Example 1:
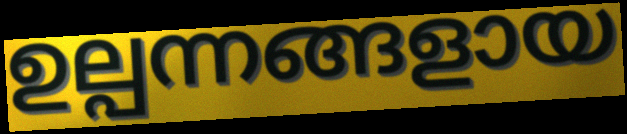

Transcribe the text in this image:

ഉല്പന്നങ്ങളായ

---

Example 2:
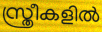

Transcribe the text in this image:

സ്ത്രീകളിൽ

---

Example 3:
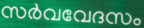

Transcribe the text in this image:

സർവവേദസം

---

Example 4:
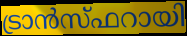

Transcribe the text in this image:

ട്രാൻസ്ഫറായി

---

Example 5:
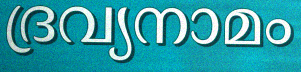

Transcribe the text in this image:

ദ്രവ്യനാമം